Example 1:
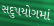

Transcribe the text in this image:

સદુપયોગમાં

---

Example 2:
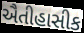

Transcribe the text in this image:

ઐતીહાસીક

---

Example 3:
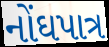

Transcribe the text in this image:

નોંઘપાત્ર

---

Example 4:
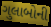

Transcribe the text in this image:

ગુલાબોની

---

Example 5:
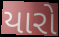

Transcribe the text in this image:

યારો